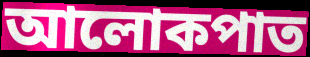
আলোকপাত